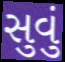
સુવું